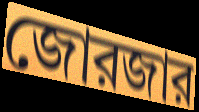
জোরজার